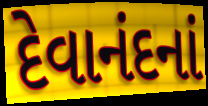
દેવાનંદનાં